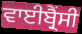
ਵਾਈਬ੍ਰੈਂਸੀ